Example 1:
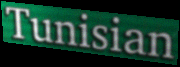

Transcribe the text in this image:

Tunisian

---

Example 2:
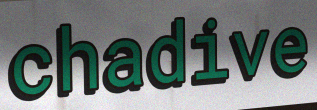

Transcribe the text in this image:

chadive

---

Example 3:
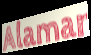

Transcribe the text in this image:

Alamar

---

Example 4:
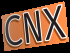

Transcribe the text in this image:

CNX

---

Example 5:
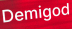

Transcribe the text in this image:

Demigod